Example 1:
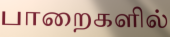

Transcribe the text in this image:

பாறைகளில்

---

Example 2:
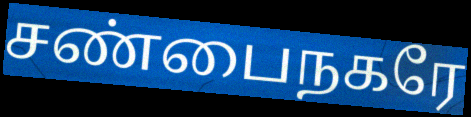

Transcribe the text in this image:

சண்பைநகரே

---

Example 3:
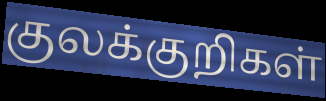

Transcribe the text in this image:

குலக்குறிகள்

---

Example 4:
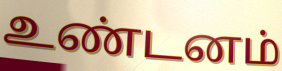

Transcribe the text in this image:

உண்டனம்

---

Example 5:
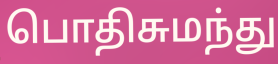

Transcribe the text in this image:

பொதிசுமந்து